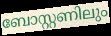
ബോസ്റ്റണിലും